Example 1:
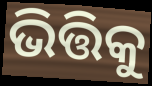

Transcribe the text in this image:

ଭିତ୍ତିକୁ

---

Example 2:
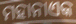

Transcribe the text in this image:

ମହାନାଏକ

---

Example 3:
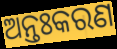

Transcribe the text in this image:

ଅନ୍ତଃକରଣ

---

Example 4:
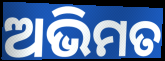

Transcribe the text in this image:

ଅଭିମତ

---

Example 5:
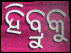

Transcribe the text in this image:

ହିବ୍ରୁକୁ